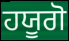
ਹਯੂਗੋ